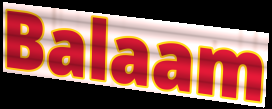
Balaam